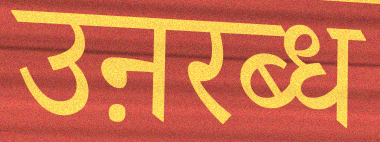
उऩरब्ध